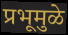
प्रभूमुळे